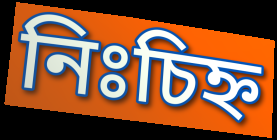
নিঃচিহ্ন